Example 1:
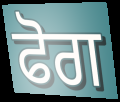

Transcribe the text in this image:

ਫੋਗ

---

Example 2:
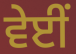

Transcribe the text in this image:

ਵੇਈਂ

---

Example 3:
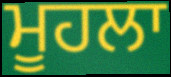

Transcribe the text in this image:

ਮੂਹਲਾ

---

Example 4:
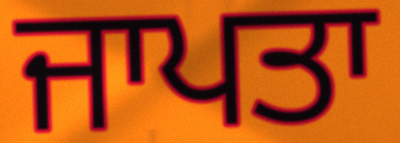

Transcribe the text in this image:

ਜਾਪਤਾ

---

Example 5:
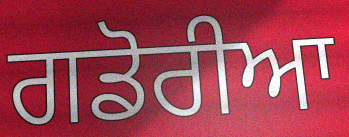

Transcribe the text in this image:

ਗਡੋਰੀਆ